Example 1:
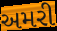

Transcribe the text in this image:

અમરી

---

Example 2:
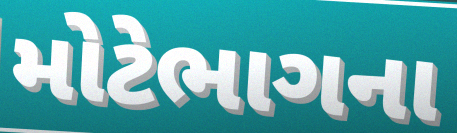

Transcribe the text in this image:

મોટેભાગના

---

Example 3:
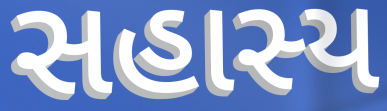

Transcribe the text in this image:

સહાસ્ય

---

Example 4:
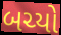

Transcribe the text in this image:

બચ્યો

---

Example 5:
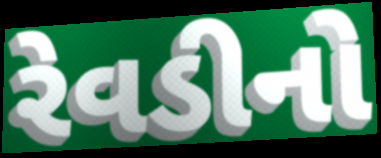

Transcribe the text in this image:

રેવડીનો